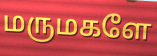
மருமகளே